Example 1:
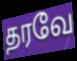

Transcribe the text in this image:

தரவே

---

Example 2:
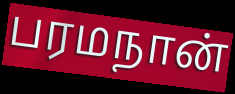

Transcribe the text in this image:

பரமநான்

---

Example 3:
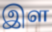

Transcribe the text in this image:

இள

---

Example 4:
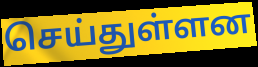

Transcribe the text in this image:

செய்துள்ளன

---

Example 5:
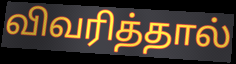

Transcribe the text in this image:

விவரித்தால்